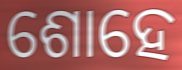
ଶୋହେ